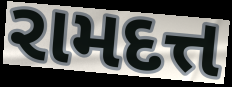
રામદત્ત